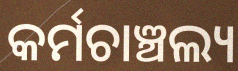
କର୍ମଚାଞ୍ଚଲ୍ୟ